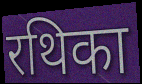
रथिका